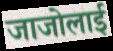
जाजोलाई